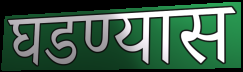
घडण्यास